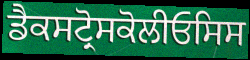
ਡੈਕਸਟ੍ਰੋਸਕੋਲੀਓਸਿਸ